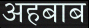
अहबाब